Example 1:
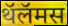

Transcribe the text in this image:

थॅलॅमस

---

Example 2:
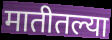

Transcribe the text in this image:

मातीतल्या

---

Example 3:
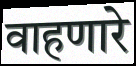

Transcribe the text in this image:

वाहणारे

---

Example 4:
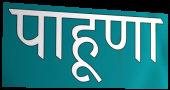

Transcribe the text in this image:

पाहूणा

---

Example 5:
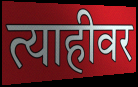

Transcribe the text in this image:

त्याहीवर